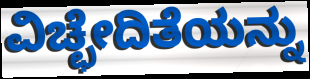
ವಿಚ್ಛೇದಿತೆಯನ್ನು